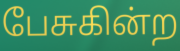
பேசுகின்ற